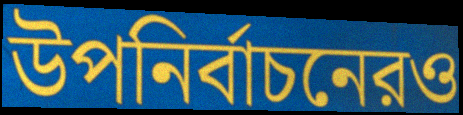
উপনির্বাচনেরও